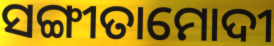
ସଙ୍ଗୀତାମୋଦୀ